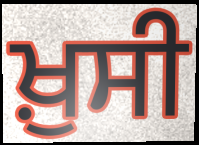
ਖ਼ੁਸੀ